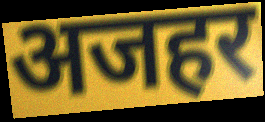
अजहर